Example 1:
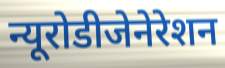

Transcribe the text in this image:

न्यूरोडीजेनेरेशन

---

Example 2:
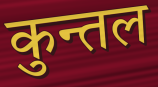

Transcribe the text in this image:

कुन्तल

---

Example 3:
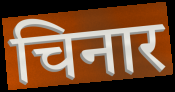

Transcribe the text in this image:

चिनार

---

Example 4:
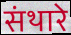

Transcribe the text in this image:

संथारे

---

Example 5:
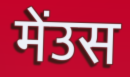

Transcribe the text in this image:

मेंउस